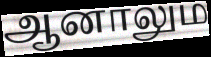
ஆனாலும